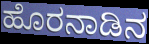
ಹೊರನಾಡಿನ